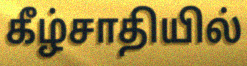
கீழ்சாதியில்